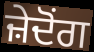
ਜ਼ੇਦੋਂਗ